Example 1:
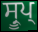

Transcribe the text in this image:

ਸ੍ਰੂਪ੍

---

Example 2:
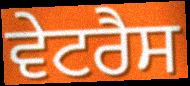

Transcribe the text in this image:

ਵੇਟਰੈਸ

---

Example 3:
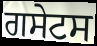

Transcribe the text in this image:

ਗਸੇਟਸ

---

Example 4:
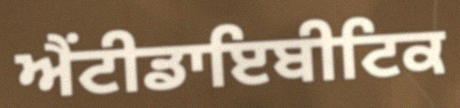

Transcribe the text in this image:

ਐਂਟੀਡਾਇਬੀਟਿਕ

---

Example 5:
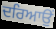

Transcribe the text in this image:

ਦਰਿਆਉਂ